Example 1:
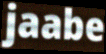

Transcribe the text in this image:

jaabe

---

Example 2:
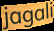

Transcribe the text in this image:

jagali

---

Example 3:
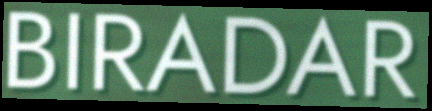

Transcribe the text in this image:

BIRADAR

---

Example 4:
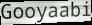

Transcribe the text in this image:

Gooyaabi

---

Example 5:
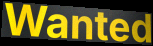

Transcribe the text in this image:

Wanted